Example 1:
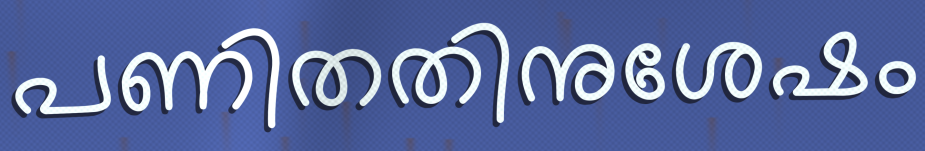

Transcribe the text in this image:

പണിതതിനുശേഷം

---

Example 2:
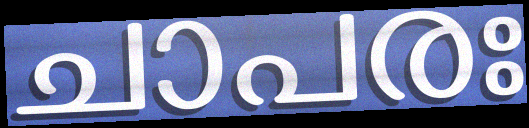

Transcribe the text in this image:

ചാപരഃ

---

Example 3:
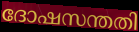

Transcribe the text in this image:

ദോഷസന്തതി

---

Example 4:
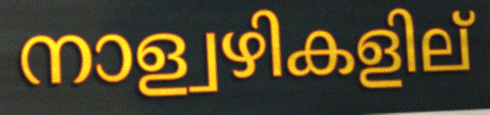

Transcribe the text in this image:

നാള്വഴികളില്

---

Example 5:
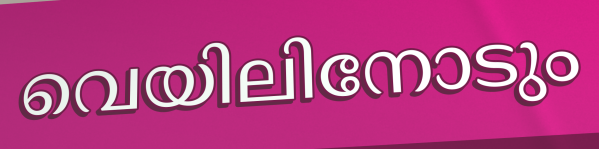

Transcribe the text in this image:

വെയിലിനോടും